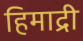
हिमाद्री